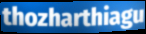
thozharthiagu